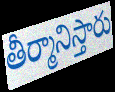
తీర్మానిస్తారు